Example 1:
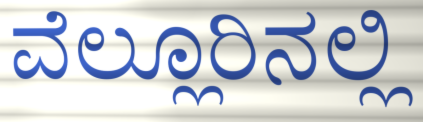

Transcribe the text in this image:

ವೆಲ್ಲೂರಿನಲ್ಲಿ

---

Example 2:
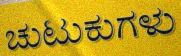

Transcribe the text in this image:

ಚುಟುಕುಗಳು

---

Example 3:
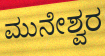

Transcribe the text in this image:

ಮುನೇಶ್ವರ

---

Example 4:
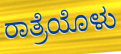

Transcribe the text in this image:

ರಾತ್ರೆಯೊಳು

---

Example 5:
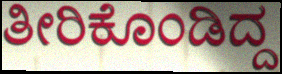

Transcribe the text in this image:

ತೀರಿಕೊಂಡಿದ್ದ